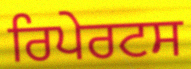
ਰਿਪੇਰਟਸ